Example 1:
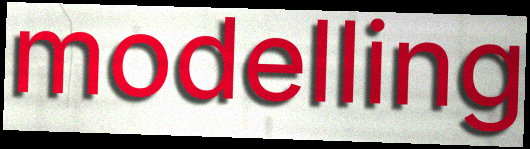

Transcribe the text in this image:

modelling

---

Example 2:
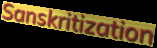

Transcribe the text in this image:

Sanskritization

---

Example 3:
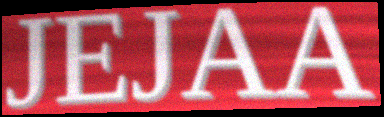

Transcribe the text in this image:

JEJAA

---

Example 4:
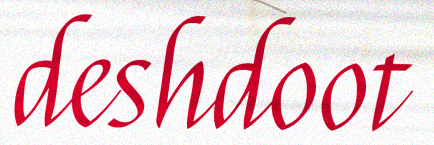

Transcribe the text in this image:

deshdoot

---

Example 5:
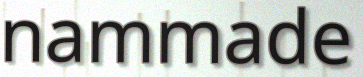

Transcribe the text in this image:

nammade